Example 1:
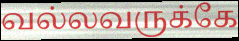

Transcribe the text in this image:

வல்லவருக்கே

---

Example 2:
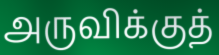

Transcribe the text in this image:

அருவிக்குத்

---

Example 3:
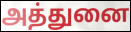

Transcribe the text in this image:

அத்துனை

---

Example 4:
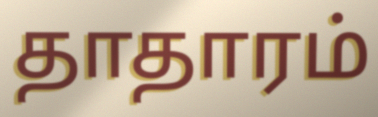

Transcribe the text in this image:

தாதாரம்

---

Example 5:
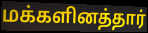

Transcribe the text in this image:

மக்களினத்தார்